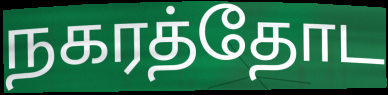
நகரத்தோட